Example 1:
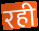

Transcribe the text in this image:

रही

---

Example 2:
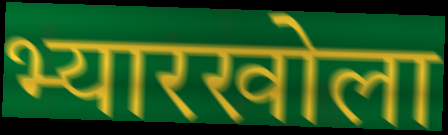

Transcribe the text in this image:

भ्यारखोला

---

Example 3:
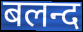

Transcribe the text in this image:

बलन्द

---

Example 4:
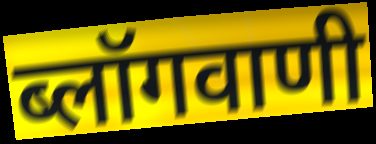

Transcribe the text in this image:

ब्लॉगवाणी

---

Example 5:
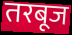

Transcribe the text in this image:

तरबूज